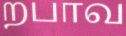
றபாவ